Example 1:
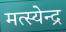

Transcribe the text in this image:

मत्स्येन्द्र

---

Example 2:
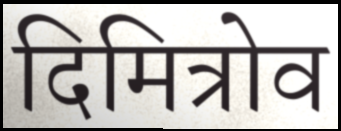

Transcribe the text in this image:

दिमित्रोव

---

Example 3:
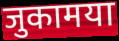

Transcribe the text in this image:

जुकामया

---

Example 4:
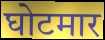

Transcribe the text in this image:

घोटमार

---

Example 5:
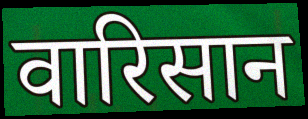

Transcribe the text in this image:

वारिसान